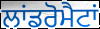
ਲਾਂਡਰੋਮੈਟਾਂ